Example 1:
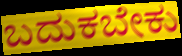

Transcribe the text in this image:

ಬದುಕಬೇಕು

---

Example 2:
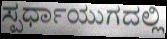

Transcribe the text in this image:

ಸ್ಪರ್ಧಾಯುಗದಲ್ಲಿ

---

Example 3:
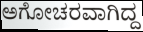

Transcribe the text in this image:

ಅಗೋಚರವಾಗಿದ್ದ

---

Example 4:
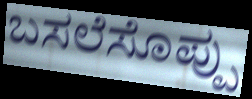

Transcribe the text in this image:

ಬಸಲೆಸೊಪ್ಪು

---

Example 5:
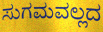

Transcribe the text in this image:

ಸುಗಮವಲ್ಲದ